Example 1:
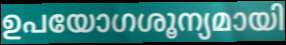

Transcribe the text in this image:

ഉപയോഗശൂന്യമായി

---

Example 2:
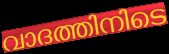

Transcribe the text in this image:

വാദത്തിനിടെ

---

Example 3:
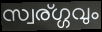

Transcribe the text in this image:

സ്വര്ഗ്ഗവും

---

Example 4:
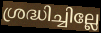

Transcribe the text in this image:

ശ്രദ്ധിച്ചില്ലേ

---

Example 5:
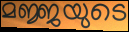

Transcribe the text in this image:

മജ്ജയുടെ